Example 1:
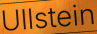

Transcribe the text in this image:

Ullstein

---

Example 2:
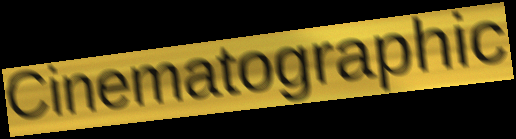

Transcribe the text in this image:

Cinematographic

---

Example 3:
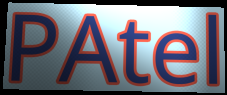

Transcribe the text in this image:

PAtel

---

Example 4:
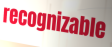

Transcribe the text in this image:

recognizable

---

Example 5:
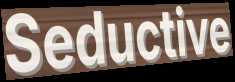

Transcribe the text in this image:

Seductive